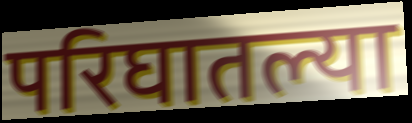
परिघातल्या